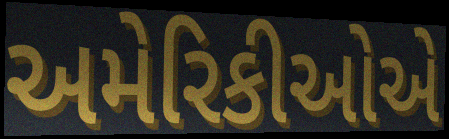
અમેરિકીઓએ